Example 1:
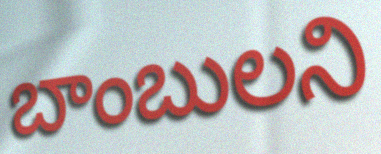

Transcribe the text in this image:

బాంబులని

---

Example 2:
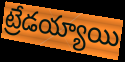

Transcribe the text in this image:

ట్రేడయ్యాయి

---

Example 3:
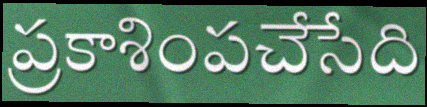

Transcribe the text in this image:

ప్రకాశింపచేసేది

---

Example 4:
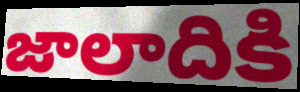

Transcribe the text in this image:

జాలాదికి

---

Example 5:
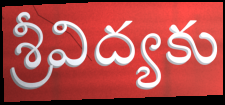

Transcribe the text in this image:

శ్రీవిద్యకు